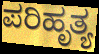
ಪರಿಹೃತ್ಯ